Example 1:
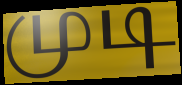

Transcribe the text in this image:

முடி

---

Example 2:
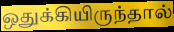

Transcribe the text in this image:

ஒதுக்கியிருந்தால்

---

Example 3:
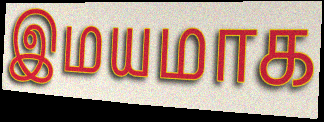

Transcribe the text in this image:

இமயமாக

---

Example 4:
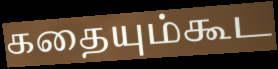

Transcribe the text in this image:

கதையும்கூட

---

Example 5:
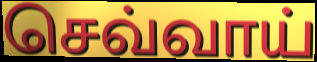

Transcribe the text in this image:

செவ்வாய்